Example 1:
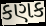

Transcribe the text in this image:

કણક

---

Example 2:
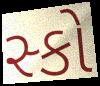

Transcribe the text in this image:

સ્કો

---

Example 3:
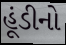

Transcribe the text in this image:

હૂંડીનો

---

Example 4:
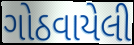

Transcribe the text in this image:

ગોઠવાયેલી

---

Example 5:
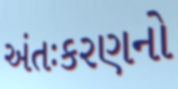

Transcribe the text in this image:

અંતઃકરણનો